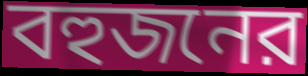
বহুজনের